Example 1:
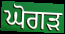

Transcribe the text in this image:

ਘੋਗੜ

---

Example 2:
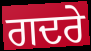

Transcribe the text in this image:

ਗਦਰੇ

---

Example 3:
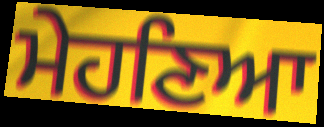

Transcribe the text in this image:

ਮੇਹਣਿਆ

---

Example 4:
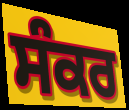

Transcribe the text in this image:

ਸੰਕਰ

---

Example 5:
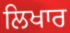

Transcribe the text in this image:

ਲਿਖਾਰ